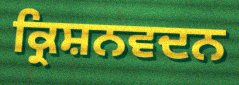
ਕ੍ਰਿਸ਼ਨਵਦਨ